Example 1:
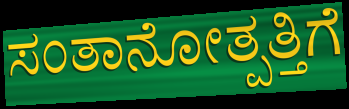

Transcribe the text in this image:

ಸಂತಾನೋತ್ಪತ್ತಿಗೆ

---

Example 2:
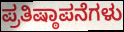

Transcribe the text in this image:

ಪ್ರತಿಷ್ಠಾಪನೆಗಳು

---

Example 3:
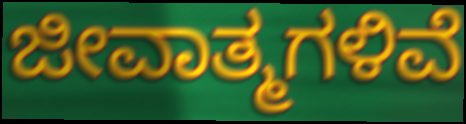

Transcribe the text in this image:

ಜೀವಾತ್ಮಗಳಿವೆ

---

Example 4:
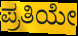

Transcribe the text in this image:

ಪ್ರತಿಯೇ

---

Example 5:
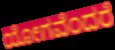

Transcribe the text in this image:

ಯೋಗವೆಂದರೆ